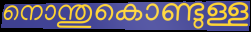
നൊന്തുകൊണ്ടുള്ള